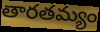
తారతమ్యం